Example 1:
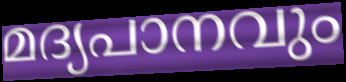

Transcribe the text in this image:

മദ്യപാനവും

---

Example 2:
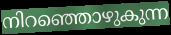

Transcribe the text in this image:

നിറഞ്ഞൊഴുകുന്ന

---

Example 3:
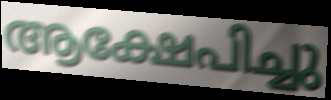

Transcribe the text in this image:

ആക്ഷേപിച്ചു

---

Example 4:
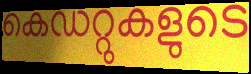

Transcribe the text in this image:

കെഡറ്റുകളുടെ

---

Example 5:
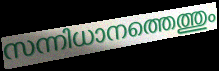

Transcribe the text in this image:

സന്നിധാനത്തെത്തും